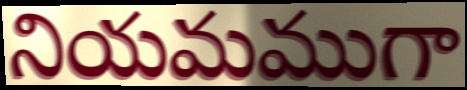
నియమముగా